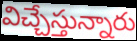
విచ్చేస్తున్నారు